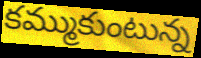
కమ్ముకుంటున్న